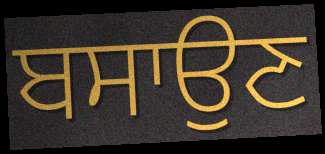
ਬਸਾਉਣ